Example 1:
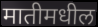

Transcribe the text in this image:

मातीमधील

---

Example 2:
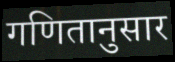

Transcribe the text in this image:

गणितानुसार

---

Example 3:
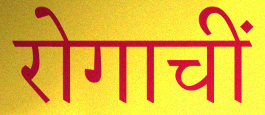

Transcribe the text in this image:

रोगाचीं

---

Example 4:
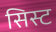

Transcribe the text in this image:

सिस्ट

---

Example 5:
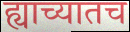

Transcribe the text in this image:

ह्याच्यातच